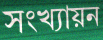
সংখ্যায়ন